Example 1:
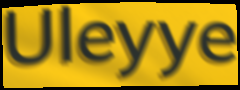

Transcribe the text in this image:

Uleyye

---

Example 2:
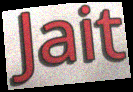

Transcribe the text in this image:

Jait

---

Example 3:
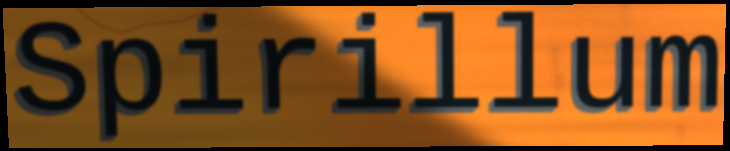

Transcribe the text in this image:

Spirillum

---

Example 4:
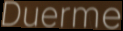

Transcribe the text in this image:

Duerme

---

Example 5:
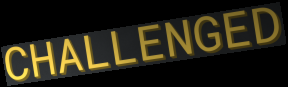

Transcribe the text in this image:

CHALLENGED